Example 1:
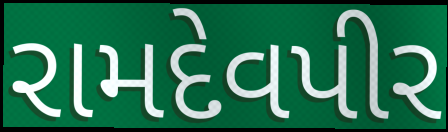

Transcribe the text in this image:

રામદેવપીર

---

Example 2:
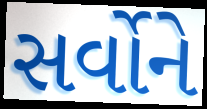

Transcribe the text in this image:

સર્વોને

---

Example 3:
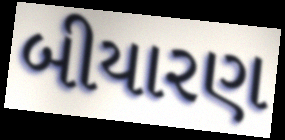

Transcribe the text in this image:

બીયારણ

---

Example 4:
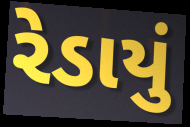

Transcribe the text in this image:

રેડાયું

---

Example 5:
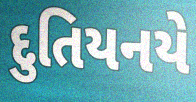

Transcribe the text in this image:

દુતિયનયે